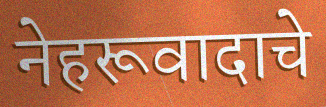
नेहरूवादाचे